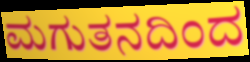
ಮಗುತನದಿಂದ